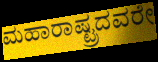
ಮಹಾರಾಷ್ಟ್ರದವರೇ